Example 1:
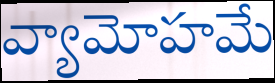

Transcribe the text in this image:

వ్యామోహమే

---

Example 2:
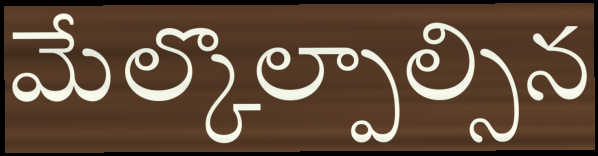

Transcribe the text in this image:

మేల్కొల్పాల్సిన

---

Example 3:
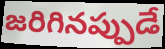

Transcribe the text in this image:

జరిగినప్పుడే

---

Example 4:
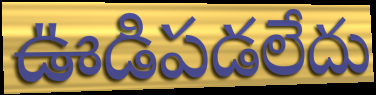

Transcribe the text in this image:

ఊడిపడలేదు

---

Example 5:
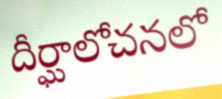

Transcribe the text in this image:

దీర్ఘాలోచనలో